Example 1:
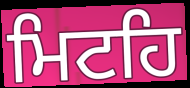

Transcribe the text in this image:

ਮਿਟਹਿ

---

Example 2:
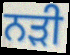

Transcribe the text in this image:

ਨੜੀ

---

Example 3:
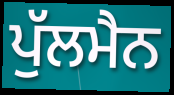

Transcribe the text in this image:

ਪੁੱਲਮੈਨ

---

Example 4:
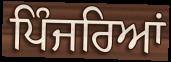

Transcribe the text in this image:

ਪਿੰਜਰਿਆਂ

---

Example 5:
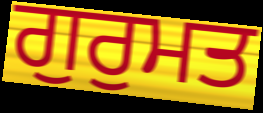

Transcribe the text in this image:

ਗੁਰੁਮਤ